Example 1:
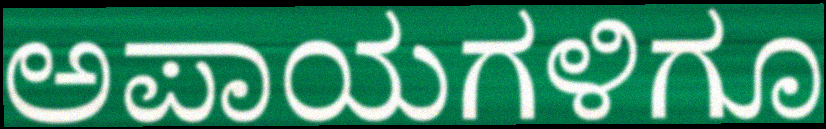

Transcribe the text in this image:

ಅಪಾಯಗಳಿಗೂ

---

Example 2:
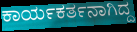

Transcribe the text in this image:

ಕಾರ್ಯಕರ್ತನಾಗಿದ್ದ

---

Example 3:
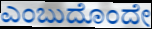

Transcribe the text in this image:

ಎಂಬುದೊಂದೇ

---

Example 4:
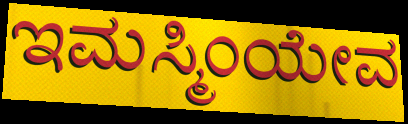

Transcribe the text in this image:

ಇಮಸ್ಮಿಂಯೇವ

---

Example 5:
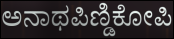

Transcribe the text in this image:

ಅನಾಥಪಿಣ್ಡಿಕೋಪಿ